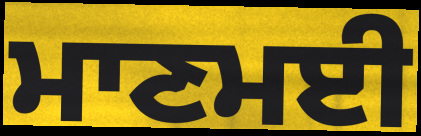
ਮਾਣਮਈ